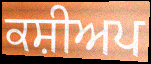
ਕਸ਼ੀਅਪ